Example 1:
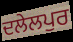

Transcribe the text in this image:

ਦਲੇਲਪੁਰ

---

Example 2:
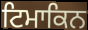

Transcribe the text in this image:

ਟਿਮਾਕਿਨ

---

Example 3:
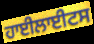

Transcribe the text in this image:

ਹਾਈਲਾਈਟਸ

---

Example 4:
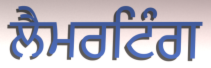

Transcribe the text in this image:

ਲੈਮਰਟਿੰਗ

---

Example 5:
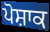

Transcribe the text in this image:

ਪੋਸ਼ਾਕ